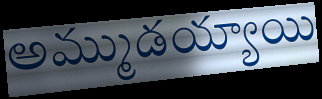
అమ్ముడయ్యాయి